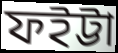
ফইট্টা